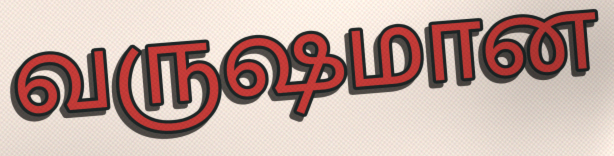
வருஷமான